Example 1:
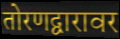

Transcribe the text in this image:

तोरणद्वारावर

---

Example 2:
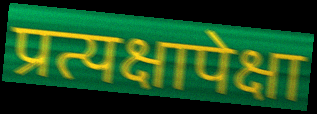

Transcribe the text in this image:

प्रत्यक्षापेक्षा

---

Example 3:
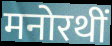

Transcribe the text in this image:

मनोरथीं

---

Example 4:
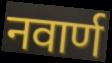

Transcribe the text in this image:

नवार्ण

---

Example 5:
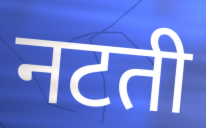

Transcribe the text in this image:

नटती